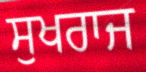
ਸੁਖਰਾਜ